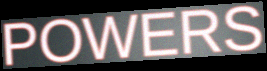
POWERS